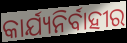
କାର୍ଯ୍ୟନିର୍ବାହୀର